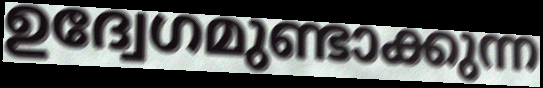
ഉദ്വേഗമുണ്ടാക്കുന്ന